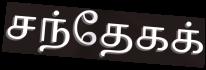
சந்தேகக்